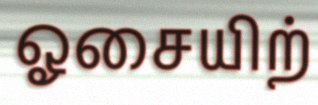
ஓசையிற்